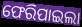
ଫେରିପାଇଲା